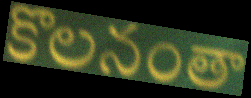
కొలనంతా